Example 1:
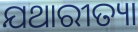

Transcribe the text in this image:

ଯଥାରୀତ୍ୟା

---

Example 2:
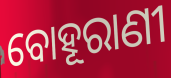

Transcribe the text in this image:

ବୋହୂରାଣୀ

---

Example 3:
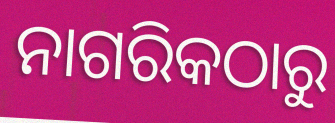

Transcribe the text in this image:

ନାଗରିକଠାରୁ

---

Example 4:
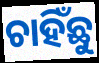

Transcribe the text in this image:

ଚାହିଁଛୁ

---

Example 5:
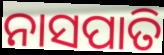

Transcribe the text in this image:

ନାସପାତି